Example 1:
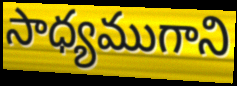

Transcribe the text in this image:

సాధ్యముగాని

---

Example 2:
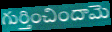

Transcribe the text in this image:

గుర్తించిందామె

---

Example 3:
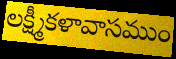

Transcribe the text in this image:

లక్ష్మీకళావాసముం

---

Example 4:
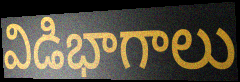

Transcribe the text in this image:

విడిభాగాలు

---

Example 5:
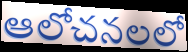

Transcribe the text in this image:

ఆలోచనలలో